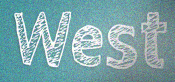
West